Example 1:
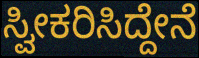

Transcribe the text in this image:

ಸ್ವೀಕರಿಸಿದ್ದೇನೆ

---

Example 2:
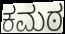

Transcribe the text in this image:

ಕಮಠ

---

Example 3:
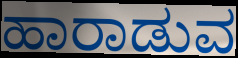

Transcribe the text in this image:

ಹಾರಾಡುವ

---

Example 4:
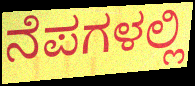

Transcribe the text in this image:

ನೆಪಗಳಲ್ಲಿ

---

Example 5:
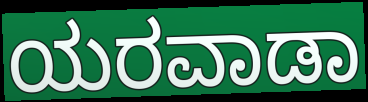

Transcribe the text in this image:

ಯರವಾಡಾ